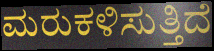
ಮರುಕಳಿಸುತ್ತಿದೆ